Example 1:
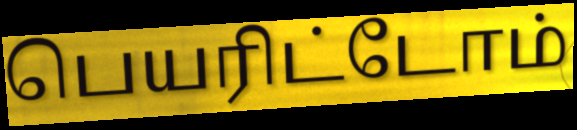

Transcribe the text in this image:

பெயரிட்டோம்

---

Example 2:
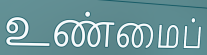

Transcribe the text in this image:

உண்மைப்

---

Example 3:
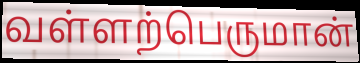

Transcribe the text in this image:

வள்ளற்பெருமான்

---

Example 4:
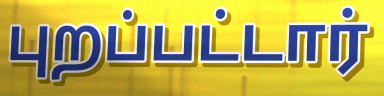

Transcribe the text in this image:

புறப்பட்டார்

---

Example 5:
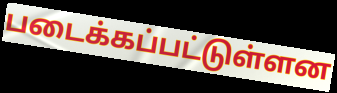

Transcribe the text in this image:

படைக்கப்பட்டுள்ளன